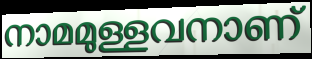
നാമമുള്ളവനാണ്